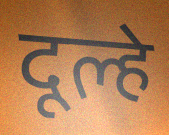
दूल्हे